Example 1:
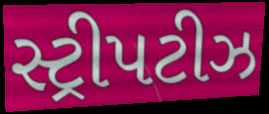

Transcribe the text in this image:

સ્ટ્રીપટીઝ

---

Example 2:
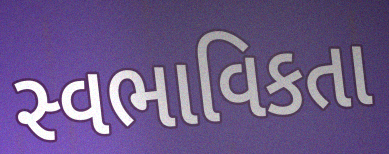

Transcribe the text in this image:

સ્વભાવિકતા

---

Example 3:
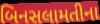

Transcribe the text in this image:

બિનસલામતીના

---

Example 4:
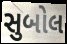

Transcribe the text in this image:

સુબોલ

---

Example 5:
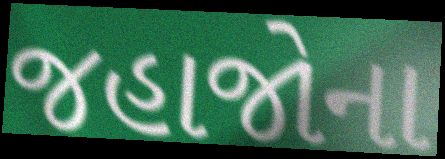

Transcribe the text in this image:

જહાજોના